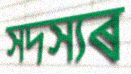
সদস্যৰ